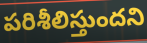
పరిశీలిస్తుందని